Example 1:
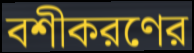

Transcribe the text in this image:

বশীকরণের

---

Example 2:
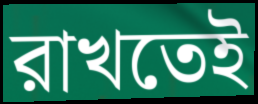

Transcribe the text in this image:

রাখতেই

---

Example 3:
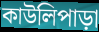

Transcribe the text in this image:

কাউলিপাড়া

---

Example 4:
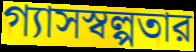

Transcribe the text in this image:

গ্যাসস্বল্পতার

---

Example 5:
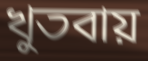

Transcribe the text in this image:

খুতবায়